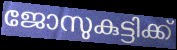
ജോസുകുട്ടിക്ക്